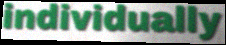
individually